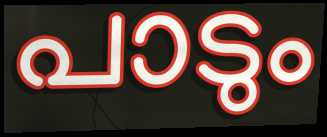
പാടും